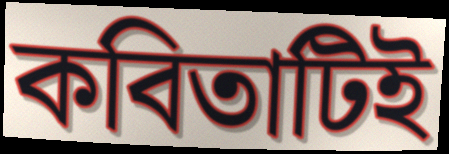
কবিতাটিই